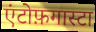
एंटोफ़गास्टा